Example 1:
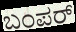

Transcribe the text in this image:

ಬಂಪರ್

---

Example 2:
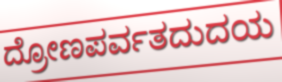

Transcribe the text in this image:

ದ್ರೋಣಪರ್ವತದುದಯ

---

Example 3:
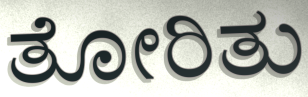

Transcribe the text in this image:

ತೋರಿತು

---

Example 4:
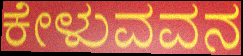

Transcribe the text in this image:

ಕೇಳುವವನ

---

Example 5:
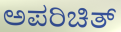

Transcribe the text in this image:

ಅಪರಿಚಿತ್